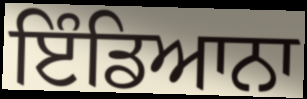
ਇੰਡਿਆਨਾ